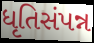
ધૃતિસંપન્ન